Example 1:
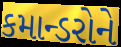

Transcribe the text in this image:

કમાન્ડરોને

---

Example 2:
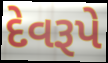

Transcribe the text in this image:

દેવરૂપે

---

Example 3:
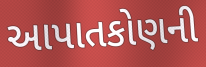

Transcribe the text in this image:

આપાતકોણની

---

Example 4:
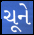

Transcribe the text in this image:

ચૂને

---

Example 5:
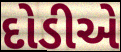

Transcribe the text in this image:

દોડીએ